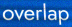
overlap